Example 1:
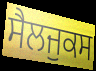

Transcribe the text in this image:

ਸੈਲਜੁਕਸ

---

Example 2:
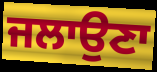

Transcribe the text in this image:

ਜਲਾਉਣਾ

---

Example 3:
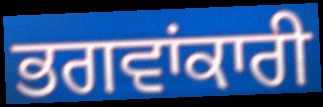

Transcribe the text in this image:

ਭਗਵਾਂਕਾਰੀ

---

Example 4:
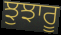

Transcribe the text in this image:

ਝੁਝਾਰੂ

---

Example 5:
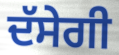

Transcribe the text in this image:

ਦੱਸੇਗੀ